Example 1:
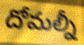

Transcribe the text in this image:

దోమల్నీ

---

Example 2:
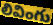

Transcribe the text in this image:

లివింగు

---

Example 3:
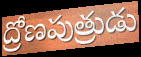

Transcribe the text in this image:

ద్రోణపుత్రుడు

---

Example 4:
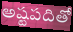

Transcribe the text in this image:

అష్టపదితో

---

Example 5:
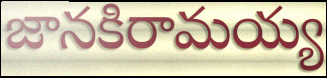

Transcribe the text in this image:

జానకిరామయ్య